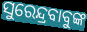
ସୁରେନ୍ଦ୍ରବାବୁଙ୍କ